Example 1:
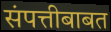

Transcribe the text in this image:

संपत्तीबाबत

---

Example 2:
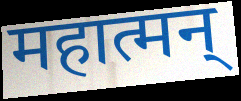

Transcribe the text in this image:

महात्मन्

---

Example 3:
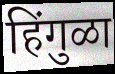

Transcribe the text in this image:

हिंगुळा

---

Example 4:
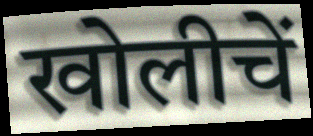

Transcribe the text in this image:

खोलीचें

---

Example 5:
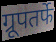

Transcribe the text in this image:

ग्रूपतर्फे